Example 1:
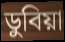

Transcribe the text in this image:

ডুবিয়া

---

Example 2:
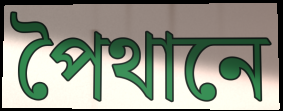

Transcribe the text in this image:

পৈথানে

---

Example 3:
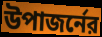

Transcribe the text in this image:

উপাজর্নের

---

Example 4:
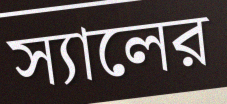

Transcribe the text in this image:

স্যালের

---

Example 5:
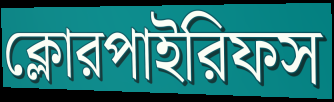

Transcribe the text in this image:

ক্লোরপাইরিফস